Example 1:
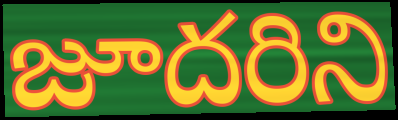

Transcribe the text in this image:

జూదరిని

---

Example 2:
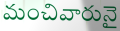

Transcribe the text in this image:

మంచివారునై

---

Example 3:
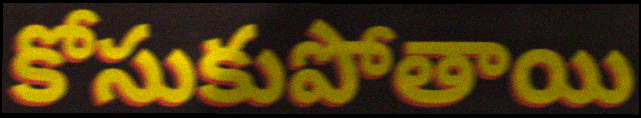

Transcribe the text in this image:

కోసుకుపోతాయి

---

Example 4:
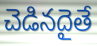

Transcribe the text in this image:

చెడినదైతే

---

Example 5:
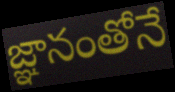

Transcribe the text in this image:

జ్ఞానంతోనే